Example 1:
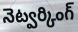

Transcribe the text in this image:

నెట్వర్కింగ్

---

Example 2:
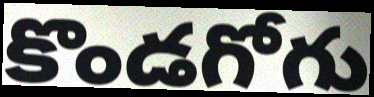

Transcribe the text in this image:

కొండగోగు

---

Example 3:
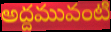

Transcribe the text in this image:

అద్దమువంటి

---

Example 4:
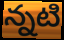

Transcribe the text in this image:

న్నటి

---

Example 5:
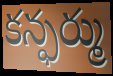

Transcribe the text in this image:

కన్ఫర్ము